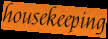
housekeeping